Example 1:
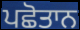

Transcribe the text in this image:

ਪਛੋਤਾਨ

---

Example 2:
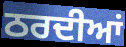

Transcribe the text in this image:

ਠਰਦੀਆਂ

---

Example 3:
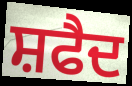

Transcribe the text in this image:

ਸ਼ਫੈਦ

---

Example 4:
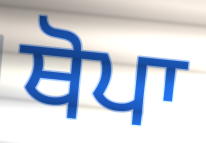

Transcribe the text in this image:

ਥੋਪਾ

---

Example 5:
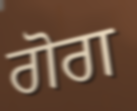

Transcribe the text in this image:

ਗੋਗ